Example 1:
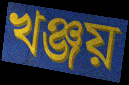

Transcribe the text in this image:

খঞ্জয়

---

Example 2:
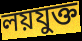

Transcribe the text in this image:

লয়যুক্ত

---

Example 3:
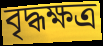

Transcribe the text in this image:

বৃদ্ধক্ষত্র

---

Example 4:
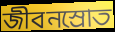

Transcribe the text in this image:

জীবনস্রোত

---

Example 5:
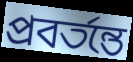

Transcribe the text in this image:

প্রবর্তন্তে